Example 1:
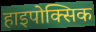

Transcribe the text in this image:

हाइपोक्सिक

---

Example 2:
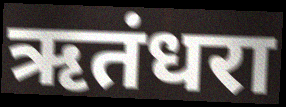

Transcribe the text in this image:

ऋतंधरा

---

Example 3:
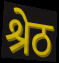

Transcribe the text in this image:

श्रेठ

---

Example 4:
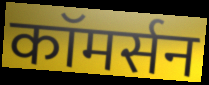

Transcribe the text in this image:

कॉमर्सन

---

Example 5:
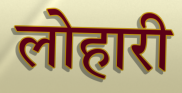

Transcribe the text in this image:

लोहारी